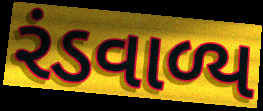
રંડવાળ્ય